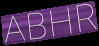
ABHR